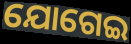
ଯୋଗେଇ